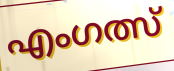
എംഗത്സ്